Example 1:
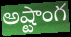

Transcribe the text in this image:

అష్టాంగ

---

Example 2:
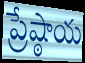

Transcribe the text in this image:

ప్రేష్ఠాయ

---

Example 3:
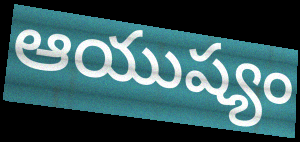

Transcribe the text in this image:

ఆయుష్యం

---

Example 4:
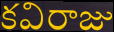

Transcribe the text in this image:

కవిరాజు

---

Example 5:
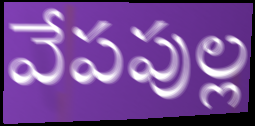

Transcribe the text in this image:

వేపపుల్ల